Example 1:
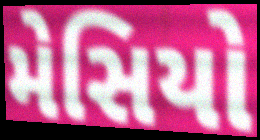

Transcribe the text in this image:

મેસિયો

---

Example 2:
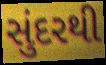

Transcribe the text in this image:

સુંદરથી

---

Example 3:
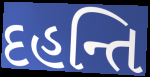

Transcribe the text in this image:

દહન્તિ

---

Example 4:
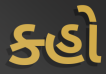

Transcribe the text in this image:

ક્હો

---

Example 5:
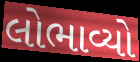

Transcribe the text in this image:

લોભાવ્યો